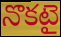
నొకటై